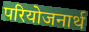
परियोजनार्थ